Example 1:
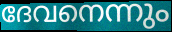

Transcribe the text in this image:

ദേവനെന്നും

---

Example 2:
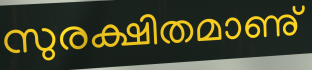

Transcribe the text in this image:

സുരക്ഷിതമാണു്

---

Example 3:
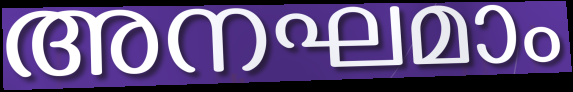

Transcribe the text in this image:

അനഘമാം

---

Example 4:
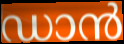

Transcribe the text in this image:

ഡാൻ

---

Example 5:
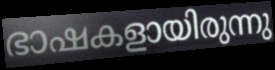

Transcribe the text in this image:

ഭാഷകളായിരുന്നു